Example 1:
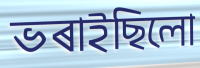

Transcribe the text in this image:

ভৰাইছিলো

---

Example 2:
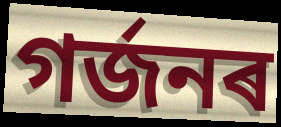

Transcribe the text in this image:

গৰ্জনৰ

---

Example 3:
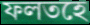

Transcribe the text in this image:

ফলতহে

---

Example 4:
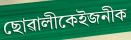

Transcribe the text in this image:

ছোৱালীকেইজনীক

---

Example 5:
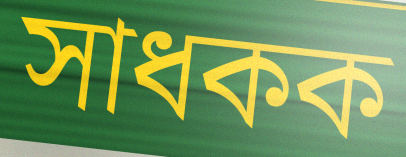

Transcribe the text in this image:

সাধকক